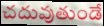
చదువుతుండే